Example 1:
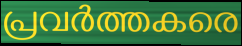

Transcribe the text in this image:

പ്രവർത്തകരെ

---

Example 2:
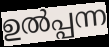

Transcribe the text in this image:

ഉൽപ്പന്ന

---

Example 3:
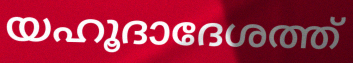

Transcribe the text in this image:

യഹൂദാദേശത്ത്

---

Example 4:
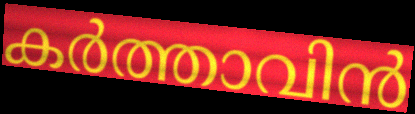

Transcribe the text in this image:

കർത്താവിൻ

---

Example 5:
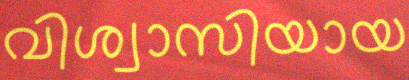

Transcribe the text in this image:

വിശ്വാസിയായ